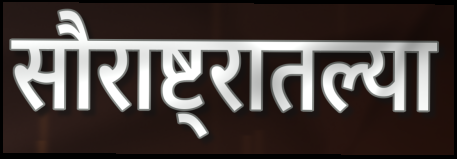
सौराष्ट्रातल्या